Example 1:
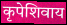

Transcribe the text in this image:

कृपेशिवाय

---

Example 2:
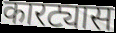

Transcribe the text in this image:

कारट्यास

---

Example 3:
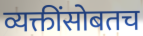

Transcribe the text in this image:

व्यक्तींसोबतच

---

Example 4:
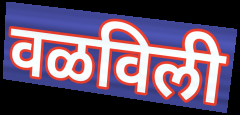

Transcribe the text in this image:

वळविली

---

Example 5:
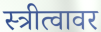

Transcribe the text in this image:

स्त्रीत्वावर